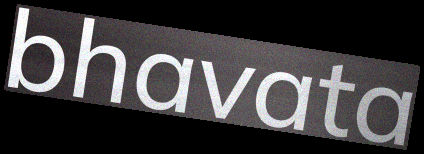
bhavata